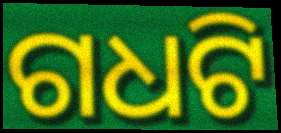
ଗଧଟି